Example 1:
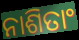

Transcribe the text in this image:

ନାଶିତାଂ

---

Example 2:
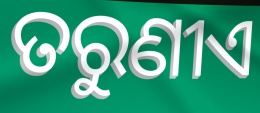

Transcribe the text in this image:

ତରୁଣୀଏ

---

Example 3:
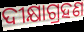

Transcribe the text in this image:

ଦୀକ୍ଷାଗ୍ରହଣ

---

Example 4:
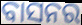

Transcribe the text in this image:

ବାସନର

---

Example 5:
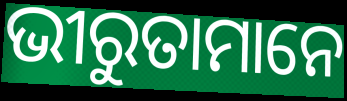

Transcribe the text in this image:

ଭୀରୁତାମାନେ